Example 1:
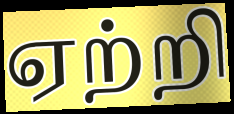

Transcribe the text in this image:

ஏற்றி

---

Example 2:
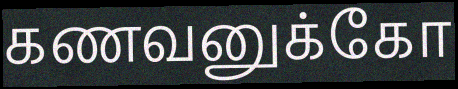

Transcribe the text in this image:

கணவனுக்கோ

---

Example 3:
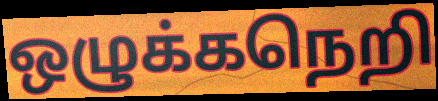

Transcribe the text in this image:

ஒழுக்கநெறி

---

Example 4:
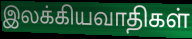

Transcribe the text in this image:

இலக்கியவாதிகள்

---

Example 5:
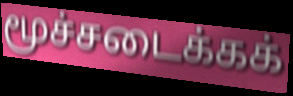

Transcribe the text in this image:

மூச்சடைக்கக்